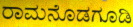
ರಾಮನೊಡಗೂಡಿ